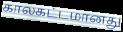
காலகட்டமானது